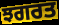
ਝਗਰਤ